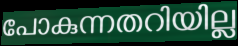
പോകുന്നതറിയില്ല